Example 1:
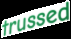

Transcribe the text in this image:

trussed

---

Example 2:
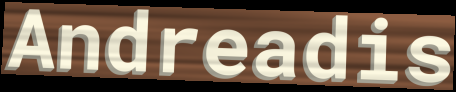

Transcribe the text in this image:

Andreadis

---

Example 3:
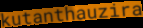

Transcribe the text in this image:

kutanthauzira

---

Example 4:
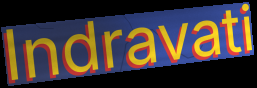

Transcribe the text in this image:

Indravati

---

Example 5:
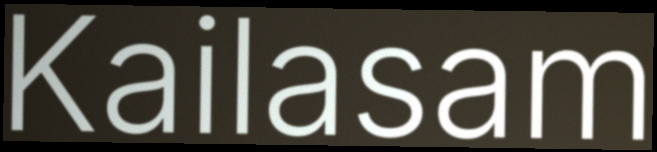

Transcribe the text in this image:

Kailasam